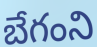
బేగంని